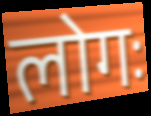
लोगः